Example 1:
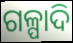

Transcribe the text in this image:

ଗଳ୍ପାଦି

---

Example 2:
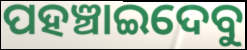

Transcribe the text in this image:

ପହଞ୍ଚାଇଦେବୁ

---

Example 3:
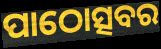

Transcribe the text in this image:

ପାଠୋତ୍ସବର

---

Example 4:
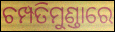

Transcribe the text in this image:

ଚମ୍ପତିମୁଣ୍ଡାରେ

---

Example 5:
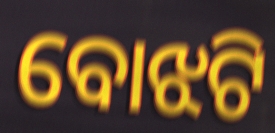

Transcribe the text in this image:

ବୋଝଟି